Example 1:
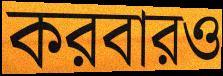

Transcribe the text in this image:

করবারও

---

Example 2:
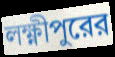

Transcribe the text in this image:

লক্ষ্ণীপুরের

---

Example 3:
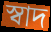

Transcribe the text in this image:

স্বাদ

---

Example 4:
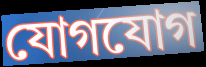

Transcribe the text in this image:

যোগযোগ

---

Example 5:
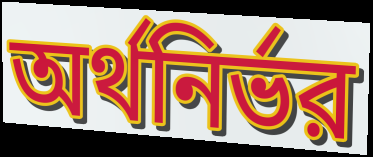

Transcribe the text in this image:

অর্থনির্ভর